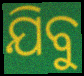
ଯିବୁ